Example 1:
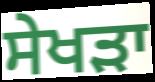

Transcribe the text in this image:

ਸੇਖੜਾ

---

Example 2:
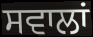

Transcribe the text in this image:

ਸਵਾਲਾਂ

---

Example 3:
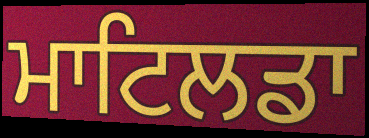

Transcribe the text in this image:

ਮਾਟਿਲਡਾ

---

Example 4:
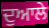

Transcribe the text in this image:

ਦੁਆਲੇ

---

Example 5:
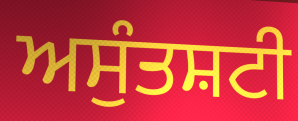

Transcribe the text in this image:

ਅਸੁੰਤਸ਼ਟੀ